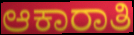
ಆಕಾರಾತಿ